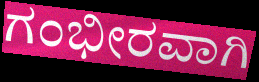
ಗಂಭೀರವಾಗಿ